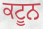
ਕਟੂਨ